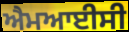
ਐਮਆਈਸੀ